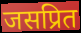
जसप्रित